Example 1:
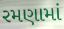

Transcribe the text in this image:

રમણામાં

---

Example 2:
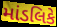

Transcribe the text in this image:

માંડલિકે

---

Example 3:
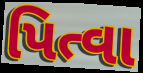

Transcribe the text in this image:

પિત્વા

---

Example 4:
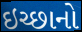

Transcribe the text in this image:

ઇચ્છાનો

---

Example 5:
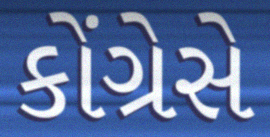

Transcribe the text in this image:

કોંગ્રેસે